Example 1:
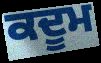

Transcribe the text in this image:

ਕਦੂਮ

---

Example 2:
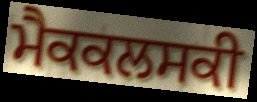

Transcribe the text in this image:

ਮੈਕਕਲਸਕੀ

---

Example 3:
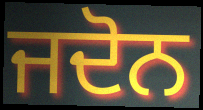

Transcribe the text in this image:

ਜਦੋਨ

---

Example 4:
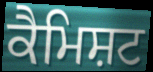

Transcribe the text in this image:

ਕੈਮਿਸ਼ਟ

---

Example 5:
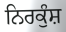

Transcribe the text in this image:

ਨਿਰਕੁੰਸ਼